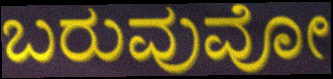
ಬರುವುವೋ